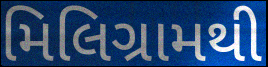
મિલિગ્રામથી